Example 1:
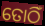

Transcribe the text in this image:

ତୋଠିଁ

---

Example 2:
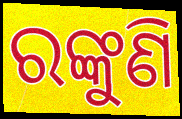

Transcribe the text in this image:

ରଙ୍କୁଣି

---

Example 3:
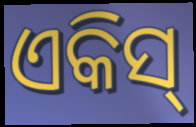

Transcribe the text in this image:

ଏକିସ୍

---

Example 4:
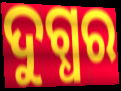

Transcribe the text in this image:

ଦୁଗ୍ଧର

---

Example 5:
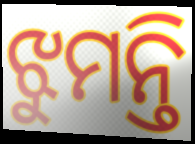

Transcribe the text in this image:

ଝୁମନ୍ତି